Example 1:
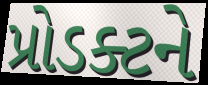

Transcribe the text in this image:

પ્રોડક્ટને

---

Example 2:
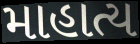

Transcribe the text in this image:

માહાત્ય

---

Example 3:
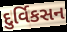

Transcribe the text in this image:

દુર્વિકસન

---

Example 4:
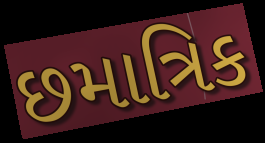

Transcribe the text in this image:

છમાત્રિક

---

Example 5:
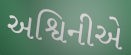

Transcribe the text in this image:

અશ્વિનીએ